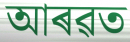
আৰৱত